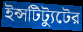
ইন্সটিট্যুটের